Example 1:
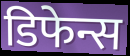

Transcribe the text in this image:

डिफेन्स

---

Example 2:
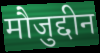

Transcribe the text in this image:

मौजुद्दीन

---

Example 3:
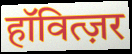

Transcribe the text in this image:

हॉवित्ज़र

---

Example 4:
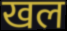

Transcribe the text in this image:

खल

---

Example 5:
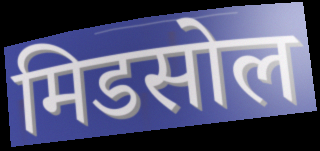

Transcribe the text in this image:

मिडसोल